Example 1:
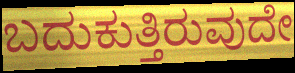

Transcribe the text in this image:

ಬದುಕುತ್ತಿರುವುದೇ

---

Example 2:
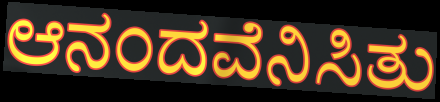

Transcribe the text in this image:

ಆನಂದವೆನಿಸಿತು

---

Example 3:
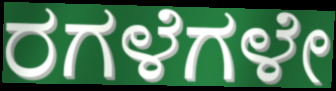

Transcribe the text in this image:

ರಗಳೆಗಳೇ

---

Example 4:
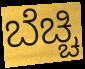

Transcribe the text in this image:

ಬೆಚ್ಚಿ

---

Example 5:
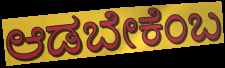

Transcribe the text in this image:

ಆಡಬೇಕೆಂಬ